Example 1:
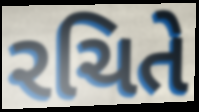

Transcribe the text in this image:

રચિતે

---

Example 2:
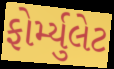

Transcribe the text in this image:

ફોર્મ્યુલેટ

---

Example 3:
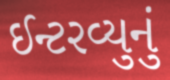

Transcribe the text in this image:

ઈન્ટરવ્યુનું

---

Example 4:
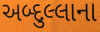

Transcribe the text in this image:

અબ્દુલ્લાના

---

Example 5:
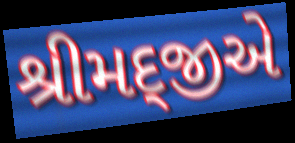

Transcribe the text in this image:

શ્રીમદ્જીએ